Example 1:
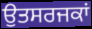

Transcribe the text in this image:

ਉਤਸਰਜਕਾਂ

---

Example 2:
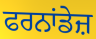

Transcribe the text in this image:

ਫਰਨਾਂਡੇਜ਼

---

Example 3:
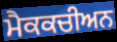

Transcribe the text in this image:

ਮੈਕਕਚੀਅਨ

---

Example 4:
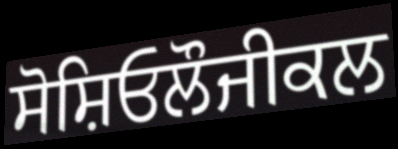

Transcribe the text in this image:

ਸੋਸ਼ਿਓਲੌਜੀਕਲ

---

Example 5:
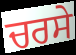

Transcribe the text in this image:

ਚਰਸੇ